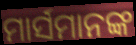
ମାର୍ସମାନଙ୍କ